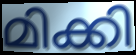
മിക്കി